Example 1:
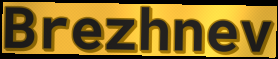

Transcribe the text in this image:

Brezhnev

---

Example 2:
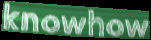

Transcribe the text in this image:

knowhow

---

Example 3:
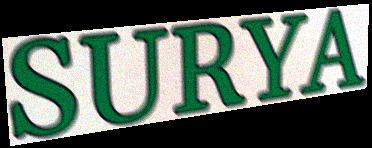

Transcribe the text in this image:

SURYA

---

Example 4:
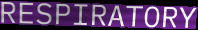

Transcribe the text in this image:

RESPIRATORY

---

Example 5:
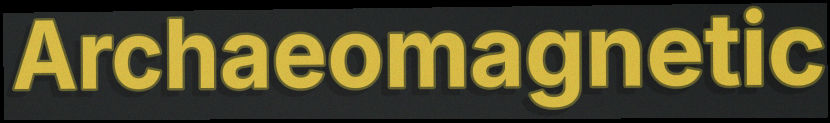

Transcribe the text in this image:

Archaeomagnetic